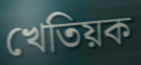
খেতিয়ক